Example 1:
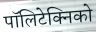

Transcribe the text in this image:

पॉलिटेक्निको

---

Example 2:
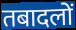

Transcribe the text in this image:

तबादलों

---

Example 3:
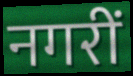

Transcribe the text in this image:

नगरीं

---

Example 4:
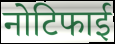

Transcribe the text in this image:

नोटिफाई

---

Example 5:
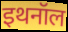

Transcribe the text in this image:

इथनॉल